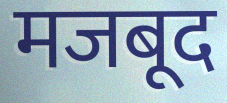
मजबूद